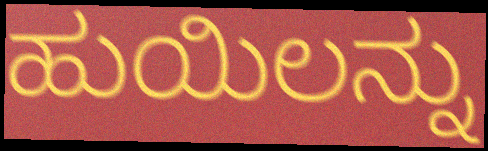
ಹುಯಿಲನ್ನು